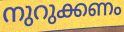
നുറുക്കണം